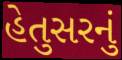
હેતુસરનું